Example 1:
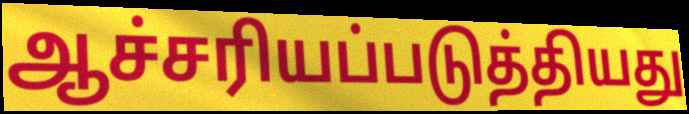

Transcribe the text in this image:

ஆச்சரியப்படுத்தியது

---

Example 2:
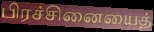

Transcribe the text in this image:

பிரச்சினையைத்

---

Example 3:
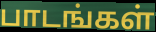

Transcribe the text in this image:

பாடங்கள்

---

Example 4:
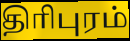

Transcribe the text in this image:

திரிபுரம்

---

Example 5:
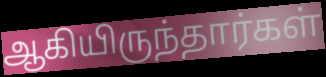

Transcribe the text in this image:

ஆகியிருந்தார்கள்